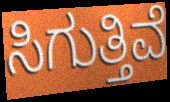
ಸಿಗುತ್ತಿವೆ